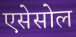
एसेसोल